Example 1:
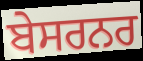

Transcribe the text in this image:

ਬੇਸਰਨਰ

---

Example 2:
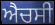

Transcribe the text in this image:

ਐਚਸੀ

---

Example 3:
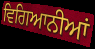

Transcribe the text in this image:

ਵਿਗਿਆਨੀਆਂ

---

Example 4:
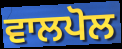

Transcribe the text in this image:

ਵਾਲਪੋਲ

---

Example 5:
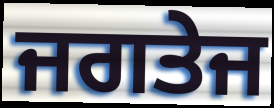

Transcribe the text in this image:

ਜਗਤੇਜ